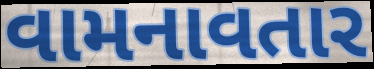
વામનાવતાર